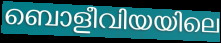
ബൊളീവിയയിലെ